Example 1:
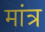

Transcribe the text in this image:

मांत्र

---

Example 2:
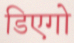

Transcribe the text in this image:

डिएगो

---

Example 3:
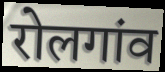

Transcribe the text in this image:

रोलगांव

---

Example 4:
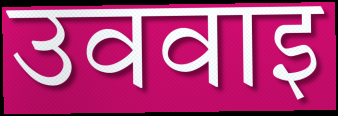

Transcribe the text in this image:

उववाइ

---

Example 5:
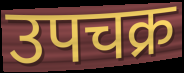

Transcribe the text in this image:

उपचक्र